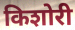
किशोरी